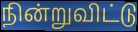
நின்றுவிட்டு